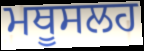
ਮਥੂਸਲਹ